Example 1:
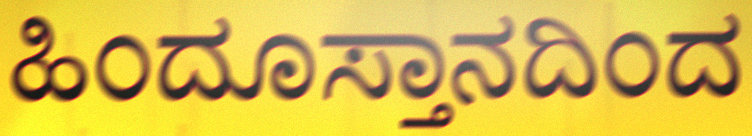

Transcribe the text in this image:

ಹಿಂದೂಸ್ತಾನದಿಂದ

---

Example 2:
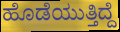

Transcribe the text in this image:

ಹೊಡೆಯುತ್ತಿದ್ದೆ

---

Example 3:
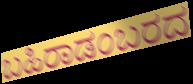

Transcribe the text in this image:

ಬಹಿರಾಡಂಬರದ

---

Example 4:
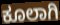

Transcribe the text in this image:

ಕೂಲಾಗಿ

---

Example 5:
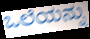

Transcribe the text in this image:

ಒಲೆಯನ್ನು